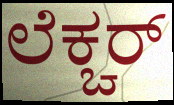
ಲೆಕ್ಚರ್